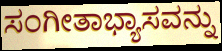
ಸಂಗೀತಾಭ್ಯಾಸವನ್ನು